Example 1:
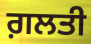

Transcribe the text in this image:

ਗ਼ਲਤੀ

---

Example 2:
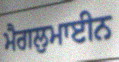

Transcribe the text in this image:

ਮੈਗਲੁਮਾਈਨ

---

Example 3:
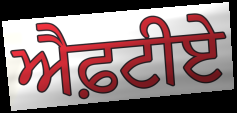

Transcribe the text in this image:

ਐਫ਼ਟੀਏ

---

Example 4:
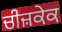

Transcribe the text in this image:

ਚੀਜ਼ਕੇਕ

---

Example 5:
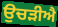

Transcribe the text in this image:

ਉਚੜੀਐ